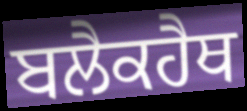
ਬਲੈਕਹੈਥ